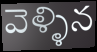
వెళ్ళిన